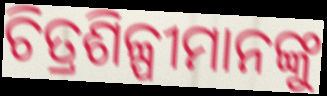
ଚିତ୍ରଶିଳ୍ପୀମାନଙ୍କୁ